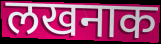
लखनाक